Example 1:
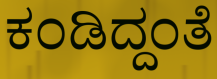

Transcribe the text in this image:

ಕಂಡಿದ್ದಂತೆ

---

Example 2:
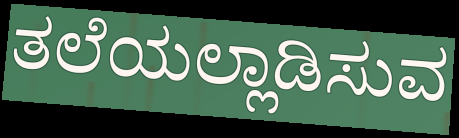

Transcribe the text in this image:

ತಲೆಯಲ್ಲಾಡಿಸುವ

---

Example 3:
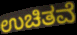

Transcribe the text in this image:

ಉಚಿತವೆ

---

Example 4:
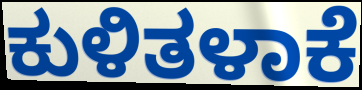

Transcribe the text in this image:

ಕುಳಿತಳಾಕೆ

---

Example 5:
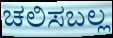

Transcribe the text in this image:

ಚಲಿಸಬಲ್ಲ